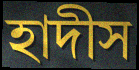
হাদীস